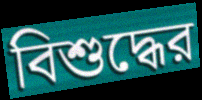
বিশুদ্ধের